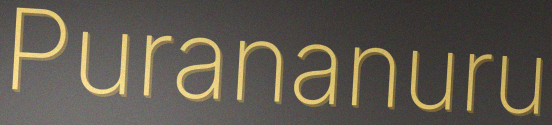
Purananuru